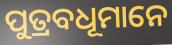
ପୁତ୍ରବଧୂମାନେ